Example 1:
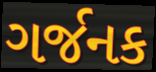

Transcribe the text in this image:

ગર્જનક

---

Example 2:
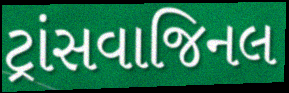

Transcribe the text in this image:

ટ્રાંસવાજિનલ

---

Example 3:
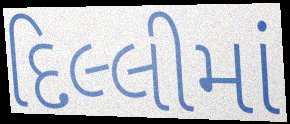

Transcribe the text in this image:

દિલ્લીમાં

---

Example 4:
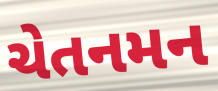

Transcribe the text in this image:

ચેતનમન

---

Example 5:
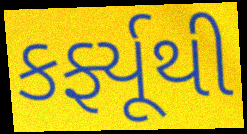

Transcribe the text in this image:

કર્ફ્યૂથી